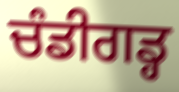
ਚੰਡੀਗਡ੍ਹ